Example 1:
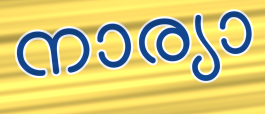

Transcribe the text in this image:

നാര്യാ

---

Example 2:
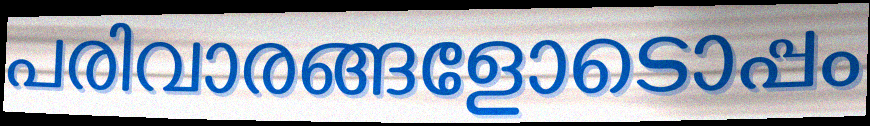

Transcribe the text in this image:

പരിവാരങ്ങളോടൊപ്പം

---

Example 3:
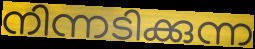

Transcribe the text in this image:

നിന്നടിക്കുന്ന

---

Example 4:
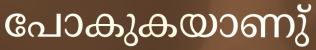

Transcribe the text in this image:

പോകുകയാണു്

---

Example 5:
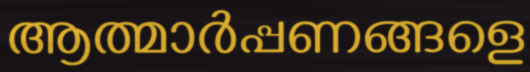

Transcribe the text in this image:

ആത്മാർപ്പണങ്ങളെ